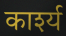
कार्श्य